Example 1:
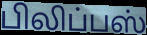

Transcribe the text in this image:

பிலிப்பஸ்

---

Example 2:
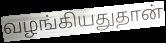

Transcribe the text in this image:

வழங்கியதுதான்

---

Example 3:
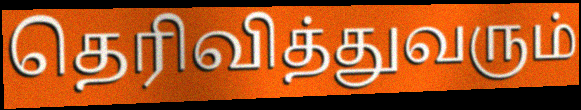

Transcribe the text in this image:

தெரிவித்துவரும்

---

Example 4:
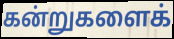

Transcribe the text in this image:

கன்றுகளைக்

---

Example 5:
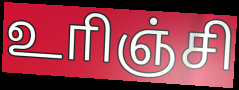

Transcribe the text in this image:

உரிஞ்சி